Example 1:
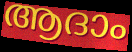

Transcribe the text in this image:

ആദാം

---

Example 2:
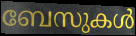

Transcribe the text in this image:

ബേസുകൾ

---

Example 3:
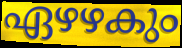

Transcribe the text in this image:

ഏഴഴകും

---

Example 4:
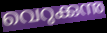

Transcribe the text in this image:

വെറുക്കുന്നു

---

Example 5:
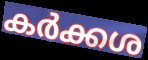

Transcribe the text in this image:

കർക്കശ